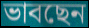
ভাবছেন